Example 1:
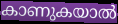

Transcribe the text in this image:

കാണുകയാൽ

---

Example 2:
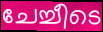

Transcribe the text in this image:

ചേച്ചീടെ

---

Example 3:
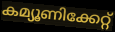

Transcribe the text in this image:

കമ്യൂണിക്കേറ്റ്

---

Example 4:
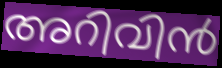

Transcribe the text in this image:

അറിവിൻ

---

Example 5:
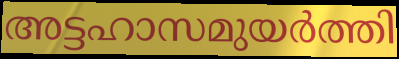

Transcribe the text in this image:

അട്ടഹാസമുയർത്തി